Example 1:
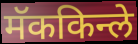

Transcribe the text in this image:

मॅककिन्ले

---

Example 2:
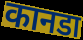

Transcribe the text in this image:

कानडा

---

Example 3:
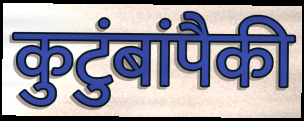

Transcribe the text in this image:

कुटुंबांपैकी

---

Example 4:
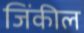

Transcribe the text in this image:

जिंकील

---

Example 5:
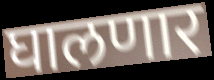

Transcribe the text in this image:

घालणार